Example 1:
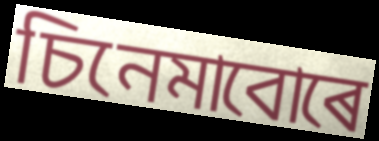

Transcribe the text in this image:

চিনেমাবোৰে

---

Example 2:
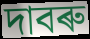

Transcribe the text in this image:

দাবৰু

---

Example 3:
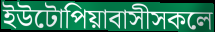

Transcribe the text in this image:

ইউটোপিয়াবাসীসকলে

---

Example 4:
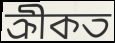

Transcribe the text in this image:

ক্ৰীকত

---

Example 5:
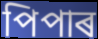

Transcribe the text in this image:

পিপাৰ